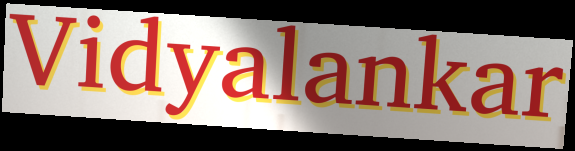
Vidyalankar